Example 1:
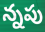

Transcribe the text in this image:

న్నపు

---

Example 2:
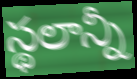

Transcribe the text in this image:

స్థలాన్నీ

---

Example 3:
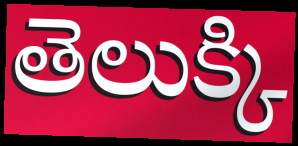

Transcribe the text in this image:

తెలుక్కి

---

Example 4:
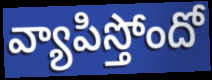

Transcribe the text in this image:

వ్యాపిస్తోందో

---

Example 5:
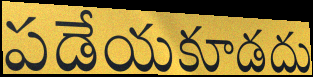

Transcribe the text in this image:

పడేయకూడదు